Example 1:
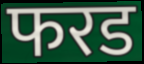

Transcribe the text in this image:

फरड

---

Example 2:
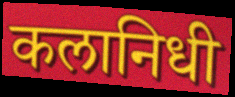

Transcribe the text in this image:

कलानिधी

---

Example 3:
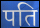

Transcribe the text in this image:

पति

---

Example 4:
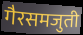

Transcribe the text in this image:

गैरसमजुती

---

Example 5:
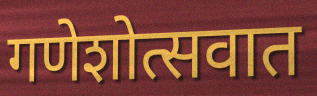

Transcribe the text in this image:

गणेशोत्सवात